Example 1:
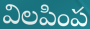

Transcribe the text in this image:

విలపింప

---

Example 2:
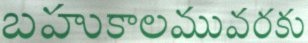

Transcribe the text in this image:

బహుకాలమువరకు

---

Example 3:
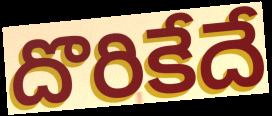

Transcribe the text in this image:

దొరికేదే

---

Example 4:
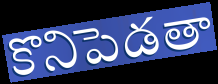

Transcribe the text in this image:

కొనిపెడతా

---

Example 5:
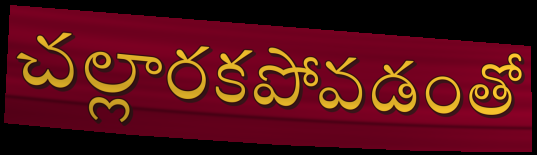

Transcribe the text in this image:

చల్లారకపోవడంతో